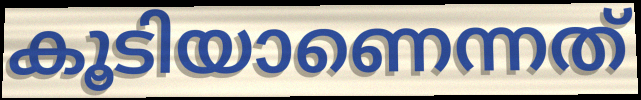
കൂടിയാണെന്നത്